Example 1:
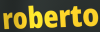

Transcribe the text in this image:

roberto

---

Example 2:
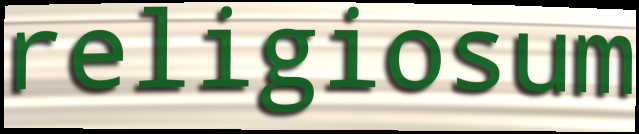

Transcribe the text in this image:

religiosum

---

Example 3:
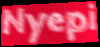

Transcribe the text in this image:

Nyepi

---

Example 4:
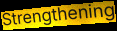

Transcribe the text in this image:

Strengthening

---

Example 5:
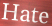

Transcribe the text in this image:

Hate